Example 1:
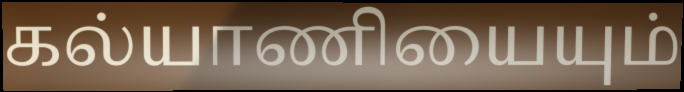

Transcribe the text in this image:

கல்யாணியையும்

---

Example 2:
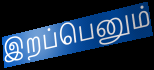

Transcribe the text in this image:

இறப்பெனும்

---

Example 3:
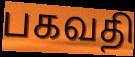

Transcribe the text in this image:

பகவதி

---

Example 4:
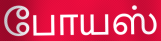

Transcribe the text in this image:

போயஸ்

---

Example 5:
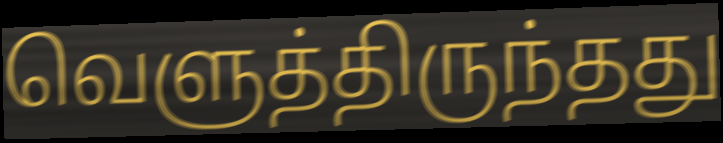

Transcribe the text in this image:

வெளுத்திருந்தது